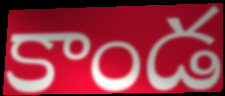
కాండ